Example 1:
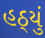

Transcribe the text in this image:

હઠ્યું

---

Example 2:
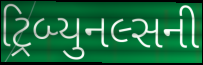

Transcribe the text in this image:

ટ્રિબ્યુનલ્સની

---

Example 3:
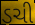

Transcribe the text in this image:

ડચી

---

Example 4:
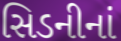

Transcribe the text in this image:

સિડનીનાં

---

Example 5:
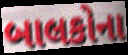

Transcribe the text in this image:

બાલકોના